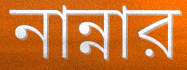
নান্নার